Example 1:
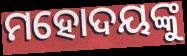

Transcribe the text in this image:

ମହୋଦୟଙ୍କୁ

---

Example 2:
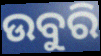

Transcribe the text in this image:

ଉବୁରି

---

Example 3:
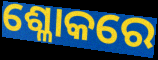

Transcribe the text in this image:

ଶ୍ଳୋକରେ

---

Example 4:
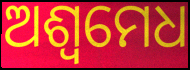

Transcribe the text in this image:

ଅଶ୍ଵମେଧ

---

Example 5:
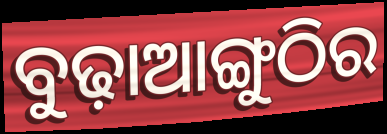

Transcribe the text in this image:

ବୁଢ଼ାଆଙ୍ଗୁଠିର